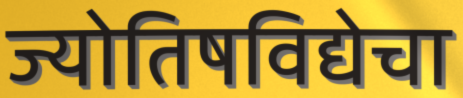
ज्योतिषविद्येचा